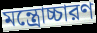
মন্ত্রোচ্চারণ